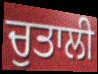
ਚੁਤਾਲੀ